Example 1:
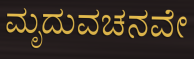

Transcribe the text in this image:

ಮೃದುವಚನವೇ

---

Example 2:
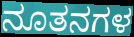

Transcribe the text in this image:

ನೂತನಗಳ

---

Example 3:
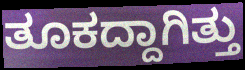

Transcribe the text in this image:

ತೂಕದ್ದಾಗಿತ್ತು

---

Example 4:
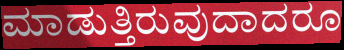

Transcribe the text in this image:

ಮಾಡುತ್ತಿರುವುದಾದರೂ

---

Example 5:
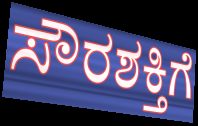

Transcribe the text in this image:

ಸೌರಶಕ್ತಿಗೆ